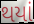
થયાં